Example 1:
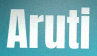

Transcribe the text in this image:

Aruti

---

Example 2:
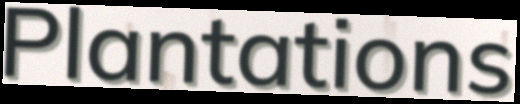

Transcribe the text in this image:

Plantations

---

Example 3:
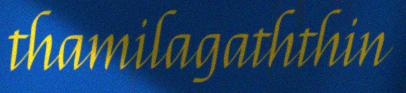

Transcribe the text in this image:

thamilagaththin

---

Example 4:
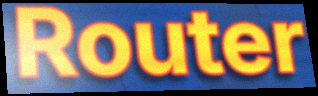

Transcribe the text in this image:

Router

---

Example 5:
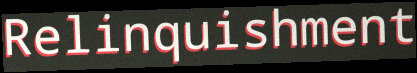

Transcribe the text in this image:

Relinquishment